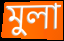
মুলা